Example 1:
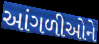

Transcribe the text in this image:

આંગળીઓને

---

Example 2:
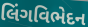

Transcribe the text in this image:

લિંગવિભેદન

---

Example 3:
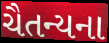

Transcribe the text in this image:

ચૈતન્યના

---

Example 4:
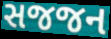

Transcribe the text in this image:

સજજન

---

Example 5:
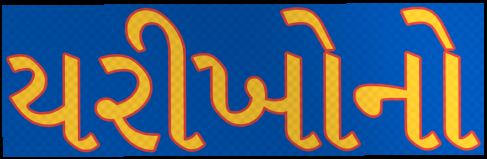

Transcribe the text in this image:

યરીખોનો